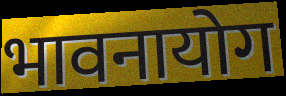
भावनायोग